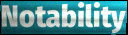
Notability